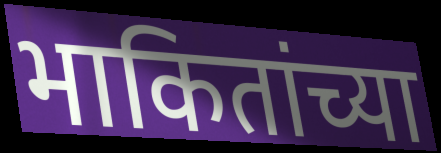
भाकितांच्या